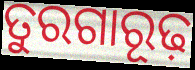
ତୁରଗାରୂଢ଼